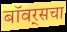
बॉवर्सचा